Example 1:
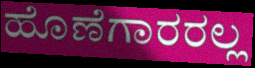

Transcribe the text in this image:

ಹೊಣೆಗಾರರಲ್ಲ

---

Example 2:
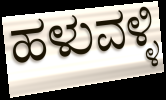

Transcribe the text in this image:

ಹಳುವಳ್ಳಿ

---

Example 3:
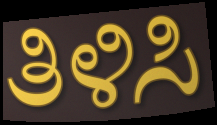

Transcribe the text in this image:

ತಿಳಿಸಿ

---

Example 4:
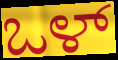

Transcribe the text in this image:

ಒಳ್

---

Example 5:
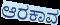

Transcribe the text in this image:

ಆರಕಾವ